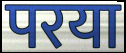
परया